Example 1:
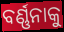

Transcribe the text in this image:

ବର୍ଣ୍ଣନାକୁ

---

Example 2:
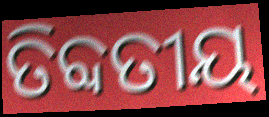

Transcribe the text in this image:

ତିବ୍ଦତୀୟ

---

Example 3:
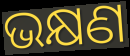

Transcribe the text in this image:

ଭକ୍ଷଣ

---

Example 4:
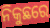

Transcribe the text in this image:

ନିକୁଛରେ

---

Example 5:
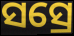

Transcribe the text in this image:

ସସ୍ରେ